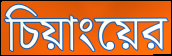
চিয়াংয়ের